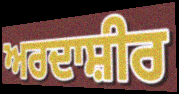
ਅਰਦਾਸ਼ੀਰ